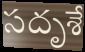
సదృశే